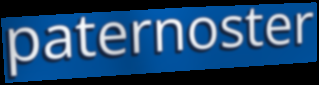
paternoster